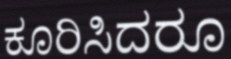
ಕೂರಿಸಿದರೂ